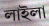
লাইলা